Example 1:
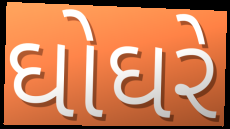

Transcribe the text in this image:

ઘોઘરે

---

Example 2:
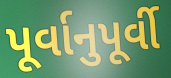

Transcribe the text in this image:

પૂર્વાનુપૂર્વી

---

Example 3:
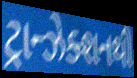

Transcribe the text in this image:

ટ્રાન્ઝેક્શનથી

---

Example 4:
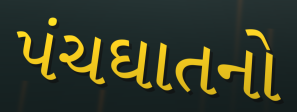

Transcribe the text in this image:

પંચઘાતનો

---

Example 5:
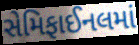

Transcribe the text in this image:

સેમિફાઈનલમાં